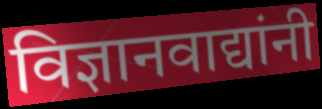
विज्ञानवाद्यांनी